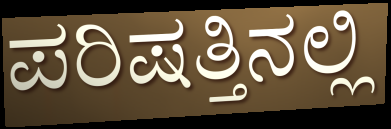
ಪರಿಷತ್ತಿನಲ್ಲಿ